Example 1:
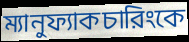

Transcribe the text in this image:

ম্যানুফ্যাকচারিংকে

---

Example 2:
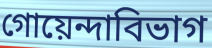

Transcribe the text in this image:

গোয়েন্দাবিভাগ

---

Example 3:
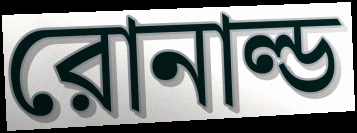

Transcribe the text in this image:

রোনাল্ড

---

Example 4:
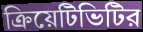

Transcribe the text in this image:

ক্রিয়েটিভিটির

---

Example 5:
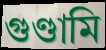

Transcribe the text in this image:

গুণ্ডামি